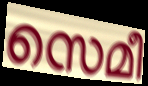
സെമീ